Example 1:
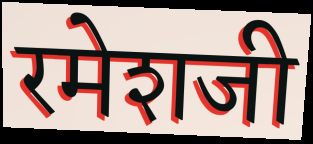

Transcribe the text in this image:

रमेशजी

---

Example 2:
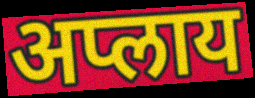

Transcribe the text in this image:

अप्लाय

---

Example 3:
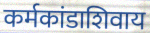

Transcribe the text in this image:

कर्मकांडाशिवाय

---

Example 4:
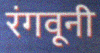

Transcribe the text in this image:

रंगवूनी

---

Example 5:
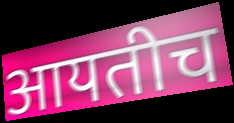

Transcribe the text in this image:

आयतीच